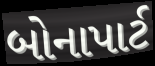
બોનાપાર્ટ